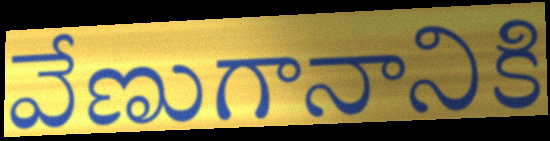
వేణుగానానికి